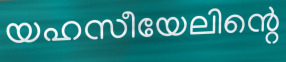
യഹസീയേലിന്റെ